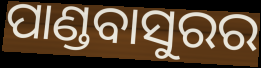
ପାଣ୍ଡବାସୁରର